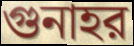
গুনাহর